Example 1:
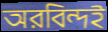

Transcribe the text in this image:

অরবিন্দই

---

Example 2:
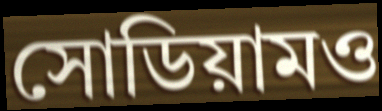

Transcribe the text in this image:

সোডিয়ামও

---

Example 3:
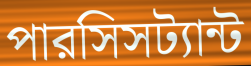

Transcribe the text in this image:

পারসিসট্যান্ট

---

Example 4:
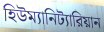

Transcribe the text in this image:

হিউম্যানিট্যারিয়ান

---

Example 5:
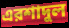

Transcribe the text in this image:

এরশাদুল